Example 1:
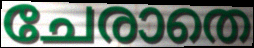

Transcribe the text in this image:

ചേരാതെ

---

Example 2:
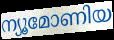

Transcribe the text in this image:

ന്യൂമോണിയ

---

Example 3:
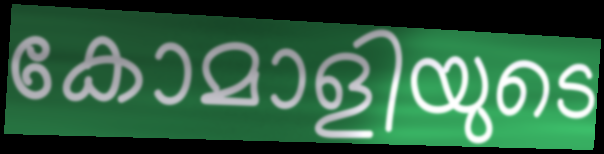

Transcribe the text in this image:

കോമാളിയുടെ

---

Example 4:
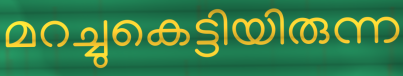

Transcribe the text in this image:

മറച്ചുകെട്ടിയിരുന്ന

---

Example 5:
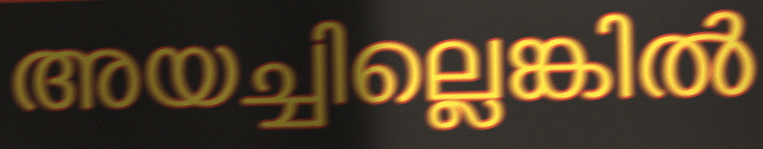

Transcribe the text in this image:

അയച്ചില്ലെങ്കിൽ